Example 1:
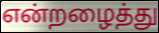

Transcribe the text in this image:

என்றழைத்து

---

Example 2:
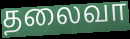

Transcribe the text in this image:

தலைவா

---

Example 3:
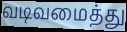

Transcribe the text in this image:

வடிவமைத்து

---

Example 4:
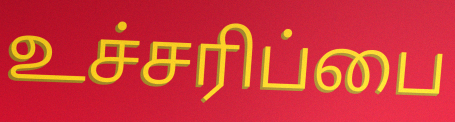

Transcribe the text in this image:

உச்சரிப்பை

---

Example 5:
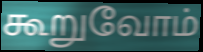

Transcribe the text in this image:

கூறுவோம்